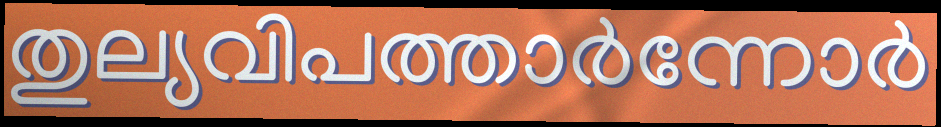
തുല്യവിപത്താർന്നോർ